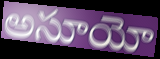
అసూయో